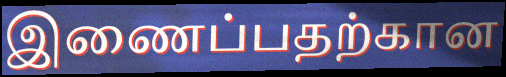
இணைப்பதற்கான